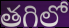
తగిలో